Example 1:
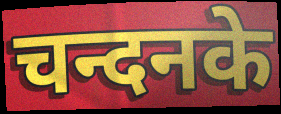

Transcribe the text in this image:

चन्दनके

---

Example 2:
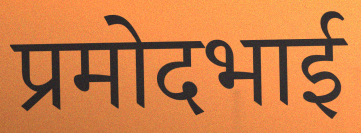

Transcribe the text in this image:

प्रमोदभाई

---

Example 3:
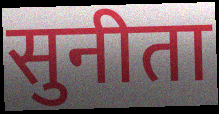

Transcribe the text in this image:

सुनीता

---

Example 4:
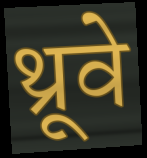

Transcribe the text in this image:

थ्रूवे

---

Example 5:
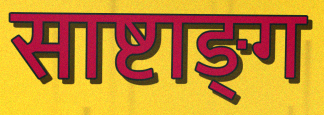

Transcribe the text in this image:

साष्टाङ्ग